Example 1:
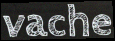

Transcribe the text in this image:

vache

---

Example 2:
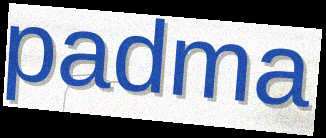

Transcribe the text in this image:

padma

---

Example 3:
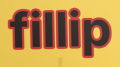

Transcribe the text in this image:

fillip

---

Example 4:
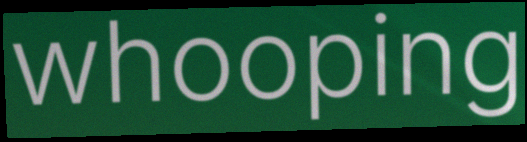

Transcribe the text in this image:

whooping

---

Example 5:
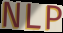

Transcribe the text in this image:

NLP